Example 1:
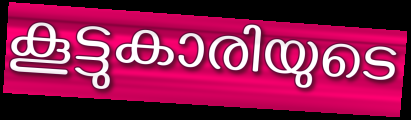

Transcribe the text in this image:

കൂട്ടുകാരിയുടെ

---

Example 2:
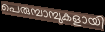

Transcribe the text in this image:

പെരുമ്പാമ്പുകളായി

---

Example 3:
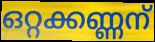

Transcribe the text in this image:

ഒറ്റക്കണ്ണന്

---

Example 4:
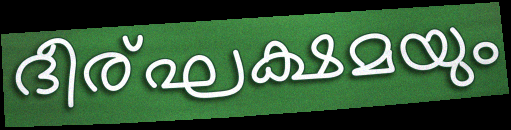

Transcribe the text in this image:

ദീര്ഘക്ഷമയും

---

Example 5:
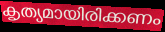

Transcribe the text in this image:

കൃത്യമായിരിക്കണം